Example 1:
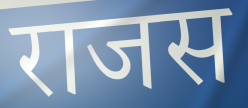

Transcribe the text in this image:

राजस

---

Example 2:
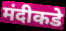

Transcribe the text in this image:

मंदीकडे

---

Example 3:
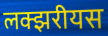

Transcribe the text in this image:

लक्झरीयस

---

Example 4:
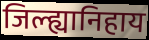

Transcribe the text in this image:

जिल्ह्यानिहाय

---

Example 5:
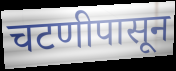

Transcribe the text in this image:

चटणीपासून